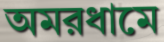
অমরধামে